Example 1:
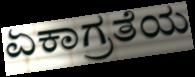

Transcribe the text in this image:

ಏಕಾಗ್ರತೆಯ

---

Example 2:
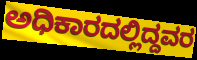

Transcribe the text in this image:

ಅಧಿಕಾರದಲ್ಲಿದ್ದವರ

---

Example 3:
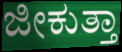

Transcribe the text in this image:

ಜೀಕುತ್ತಾ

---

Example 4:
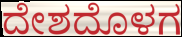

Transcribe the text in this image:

ದೇಶದೊಳಗ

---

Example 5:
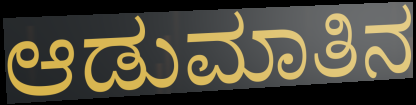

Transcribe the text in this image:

ಆಡುಮಾತಿನ